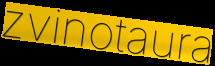
zvinotaura